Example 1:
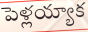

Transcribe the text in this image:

పెళ్లయ్యాక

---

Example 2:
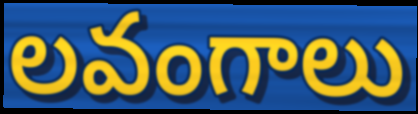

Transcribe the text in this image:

లవంగాలు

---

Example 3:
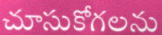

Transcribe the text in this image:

చూసుకోగలను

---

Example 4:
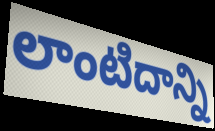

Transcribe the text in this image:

లాంటిదాన్ని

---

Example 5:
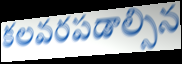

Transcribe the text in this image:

కలవరపడాల్సిన